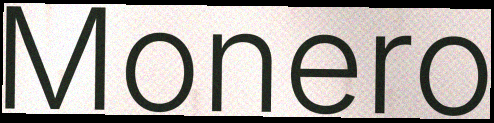
Monero